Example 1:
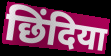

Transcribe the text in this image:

छिंदिया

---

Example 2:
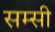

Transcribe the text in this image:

सम्सी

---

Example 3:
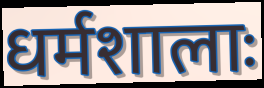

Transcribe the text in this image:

धर्मशालाः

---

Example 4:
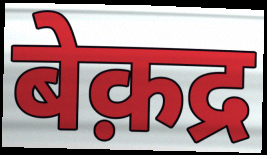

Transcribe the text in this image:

बेक़द्र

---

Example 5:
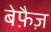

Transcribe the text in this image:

बेफ़ैज़